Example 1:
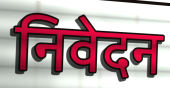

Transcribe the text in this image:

निवेदन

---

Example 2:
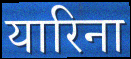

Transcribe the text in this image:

यारिना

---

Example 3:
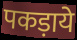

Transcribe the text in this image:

पकड़ाये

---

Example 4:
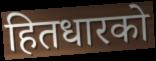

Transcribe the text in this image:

हितधारको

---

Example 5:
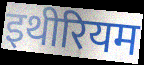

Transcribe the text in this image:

इथीरियम